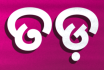
ତଡ଼